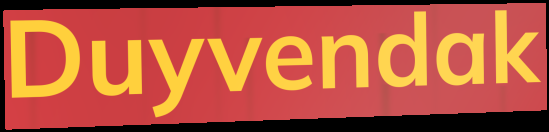
Duyvendak